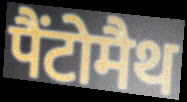
पैंटोमैथ